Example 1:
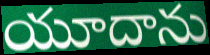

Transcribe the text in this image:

యూదాను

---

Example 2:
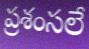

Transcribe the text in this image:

ప్రశంసలే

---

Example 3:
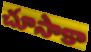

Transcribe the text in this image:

చూసాకా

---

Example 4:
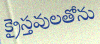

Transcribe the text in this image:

క్రైస్తవులతోను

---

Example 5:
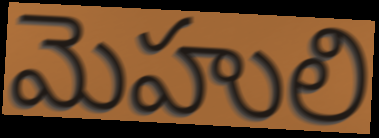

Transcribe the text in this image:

మెహులి